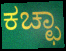
ಕಚ್ಛಾ